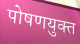
पोषणयुक्‍त